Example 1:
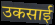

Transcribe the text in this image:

उकसाई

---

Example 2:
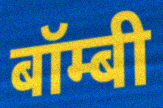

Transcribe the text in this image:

बॉम्बी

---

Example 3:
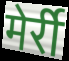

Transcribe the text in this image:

मेर्री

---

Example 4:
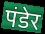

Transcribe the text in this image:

पंडेर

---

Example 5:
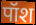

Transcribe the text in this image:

पॉश